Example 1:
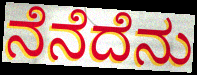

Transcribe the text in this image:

ನೆನೆದೆನು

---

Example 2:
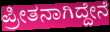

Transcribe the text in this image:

ಪ್ರೀತನಾಗಿದ್ದೇನೆ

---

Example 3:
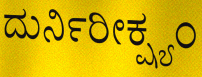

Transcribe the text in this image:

ದುರ್ನಿರೀಕ್ಷ್ಯಂ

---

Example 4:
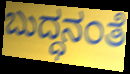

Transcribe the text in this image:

ಬುದ್ಧನಂತೆ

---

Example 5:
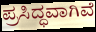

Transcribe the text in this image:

ಪ್ರಸಿದ್ಧವಾಗಿವೆ